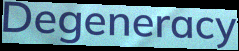
Degeneracy